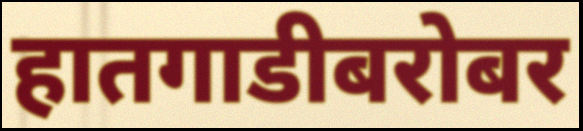
हातगाडीबरोबर